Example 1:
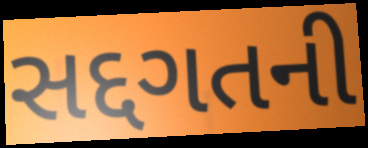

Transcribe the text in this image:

સદ્દગતની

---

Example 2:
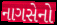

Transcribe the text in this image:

નાગસેનો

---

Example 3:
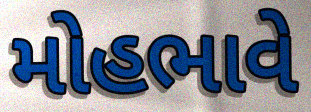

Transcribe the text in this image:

મોહભાવે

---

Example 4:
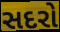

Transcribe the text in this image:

સદરો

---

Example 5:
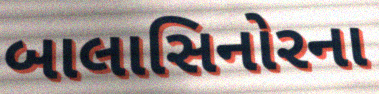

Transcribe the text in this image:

બાલાસિનોરના